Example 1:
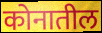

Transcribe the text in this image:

कोनातील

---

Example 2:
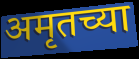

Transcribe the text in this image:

अमृतच्या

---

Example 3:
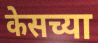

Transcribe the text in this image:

केसच्या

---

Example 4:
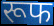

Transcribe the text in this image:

रूफ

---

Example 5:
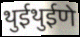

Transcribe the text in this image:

थुईथुईणे